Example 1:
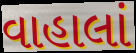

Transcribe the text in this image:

વાહાલાં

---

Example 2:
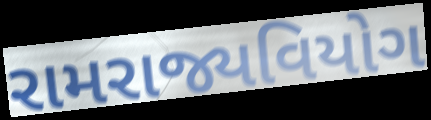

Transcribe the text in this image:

રામરાજ્યવિયોગ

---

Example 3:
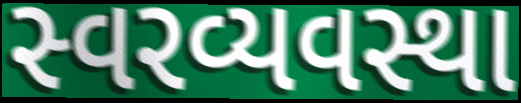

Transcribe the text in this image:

સ્વરવ્યવસ્થા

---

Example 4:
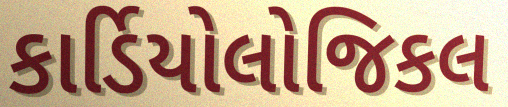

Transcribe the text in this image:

કાર્ડિયોલોજિકલ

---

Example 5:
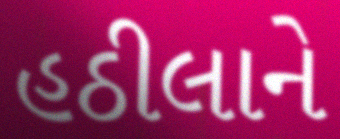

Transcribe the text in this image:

હઠીલાને